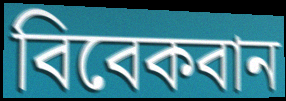
বিবেকবান